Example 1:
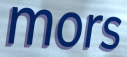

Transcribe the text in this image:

mors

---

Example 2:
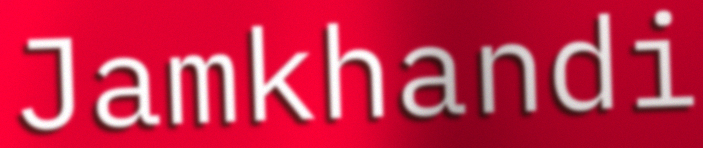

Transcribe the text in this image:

Jamkhandi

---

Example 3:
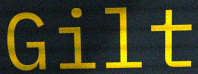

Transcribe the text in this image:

Gilt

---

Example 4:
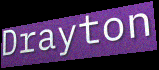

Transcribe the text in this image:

Drayton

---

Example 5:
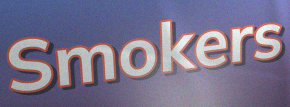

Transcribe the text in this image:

Smokers